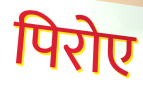
पिरोए